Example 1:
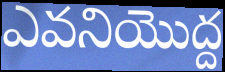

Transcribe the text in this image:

ఎవనియొద్ద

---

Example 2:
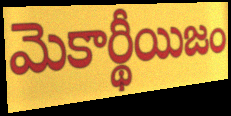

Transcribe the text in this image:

మెకార్థీయిజం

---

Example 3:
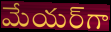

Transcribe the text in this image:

మేయర్‌గా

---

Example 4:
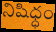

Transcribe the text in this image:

నిషిధ్ధం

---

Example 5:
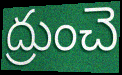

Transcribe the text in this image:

ద్రుంచె